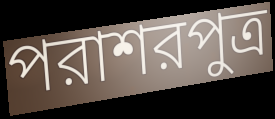
পরাশরপুত্র